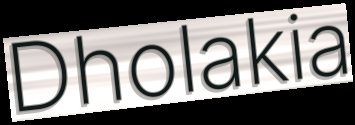
Dholakia